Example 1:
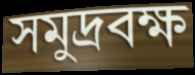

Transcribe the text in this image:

সমুদ্রবক্ষ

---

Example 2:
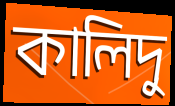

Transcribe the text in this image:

কালিদু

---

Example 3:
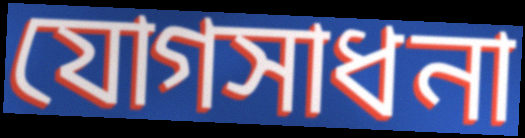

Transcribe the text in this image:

যোগসাধনা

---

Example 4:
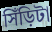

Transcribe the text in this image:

সিঁড়িটা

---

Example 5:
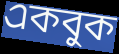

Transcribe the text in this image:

একবুক